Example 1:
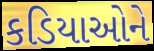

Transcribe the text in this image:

કડિયાઓને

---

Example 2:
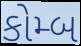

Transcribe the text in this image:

કોમ્બ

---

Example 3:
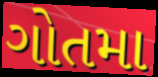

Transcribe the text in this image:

ગોતમા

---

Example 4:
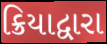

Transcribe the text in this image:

ક્રિયાદ્વારા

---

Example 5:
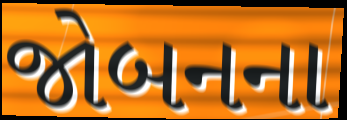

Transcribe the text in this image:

જોબનના